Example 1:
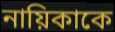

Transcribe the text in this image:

নায়িকাকে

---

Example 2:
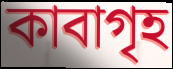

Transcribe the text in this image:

কাবাগৃহ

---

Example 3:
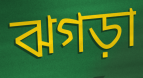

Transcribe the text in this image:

ঝগড়া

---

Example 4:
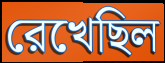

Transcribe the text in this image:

রেখেছিল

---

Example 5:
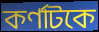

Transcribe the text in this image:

কর্ণাটকে